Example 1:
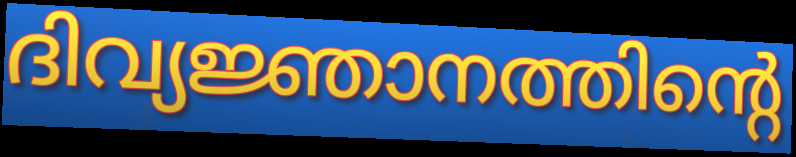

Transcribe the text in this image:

ദിവ്യജ്ഞാനത്തിന്റെ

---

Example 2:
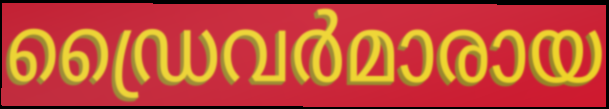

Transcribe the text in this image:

ഡ്രൈവർമാരായ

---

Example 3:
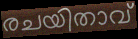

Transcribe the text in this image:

രചയിതാവ്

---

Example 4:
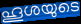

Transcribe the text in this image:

ഹൂശയുടെ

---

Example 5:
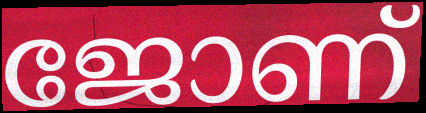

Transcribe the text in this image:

ജോണ്